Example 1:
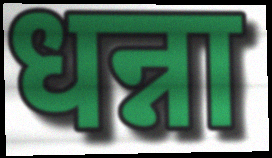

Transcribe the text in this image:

धन्ना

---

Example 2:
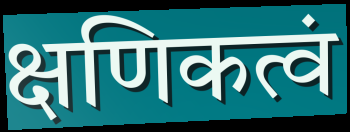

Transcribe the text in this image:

क्षणिकत्वं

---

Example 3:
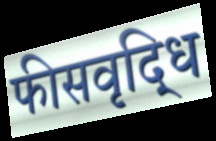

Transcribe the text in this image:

फीसवृद्धि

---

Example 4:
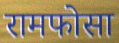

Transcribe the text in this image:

रामफोसा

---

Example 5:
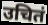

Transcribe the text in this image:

उचितं